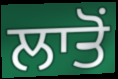
ਲਾਤੋਂ